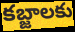
కబ్జాలకు